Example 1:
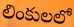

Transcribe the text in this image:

లింకులలో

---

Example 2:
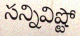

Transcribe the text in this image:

సన్నివిష్టో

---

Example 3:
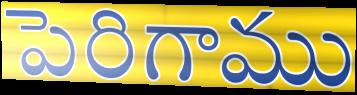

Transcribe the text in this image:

పెరిగాము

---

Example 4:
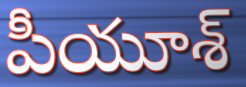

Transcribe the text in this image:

పీయూశ్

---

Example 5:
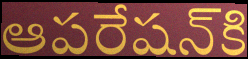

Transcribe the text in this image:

ఆపరేషన్‌కి